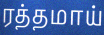
ரத்தமாய்